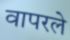
वापरले